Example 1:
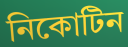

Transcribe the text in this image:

নিকোটিন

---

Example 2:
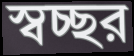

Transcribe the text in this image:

স্বচ্ছর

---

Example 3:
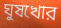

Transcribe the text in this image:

ঘুষখোর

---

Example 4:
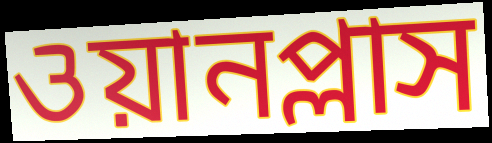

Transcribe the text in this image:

ওয়ানপ্লাস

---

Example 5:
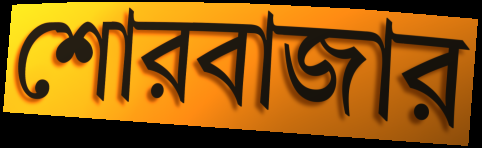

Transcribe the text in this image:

শোরবাজার